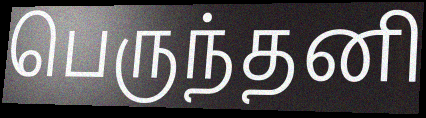
பெருந்தனி